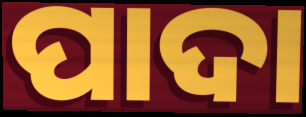
ପାଦା